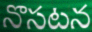
నొసటన